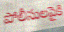
పోలీసులపైకి